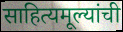
साहित्यमूल्यांची